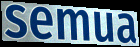
semua